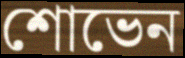
শোভেন